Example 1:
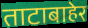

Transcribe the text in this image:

ताटाबाहेर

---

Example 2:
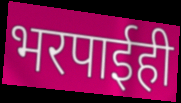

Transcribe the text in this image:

भरपाईही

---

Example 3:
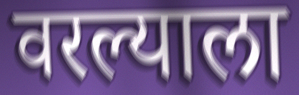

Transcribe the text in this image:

वरल्याला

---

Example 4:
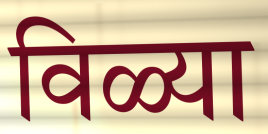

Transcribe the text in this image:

विळ्या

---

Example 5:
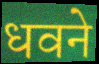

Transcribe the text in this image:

धवने